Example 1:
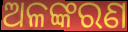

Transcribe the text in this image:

ଅଳଙ୍କରଣ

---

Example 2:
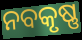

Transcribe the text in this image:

ନବକୃଷ୍ଣ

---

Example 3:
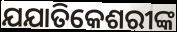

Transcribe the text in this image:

ଯଯାତିକେଶରୀଙ୍କ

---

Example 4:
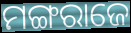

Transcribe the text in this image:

ମଙ୍ଗରାଜେ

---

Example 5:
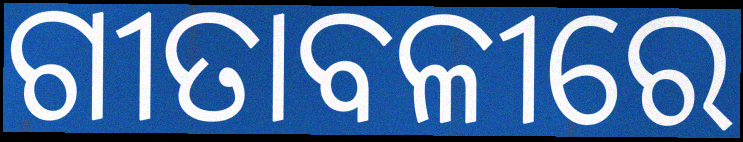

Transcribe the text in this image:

ଗୀତାବଳୀରେ